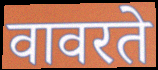
वावरते